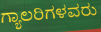
ಗ್ಯಾಲರಿಗಳವರು